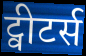
ट्वीटर्स